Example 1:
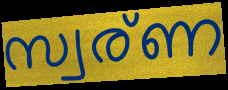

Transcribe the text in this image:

സ്വര്ണ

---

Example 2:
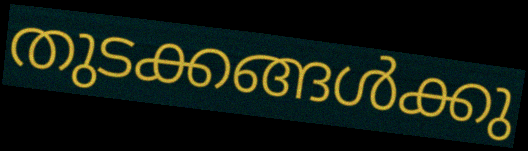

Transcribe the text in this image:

തുടക്കങ്ങൾക്കു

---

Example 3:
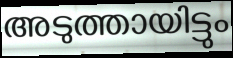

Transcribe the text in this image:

അടുത്തായിട്ടും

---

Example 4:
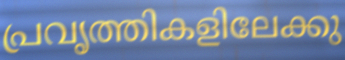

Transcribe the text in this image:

പ്രവൃത്തികളിലേക്കു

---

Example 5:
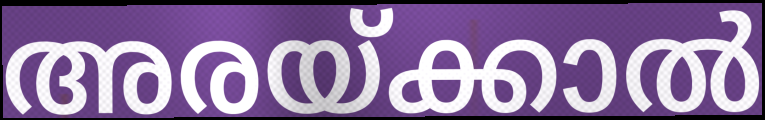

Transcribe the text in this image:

അരയ്ക്കാൽ